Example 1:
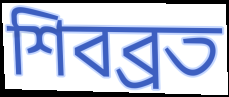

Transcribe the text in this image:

শিবব্রত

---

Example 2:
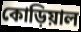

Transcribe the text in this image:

কোড়িয়াল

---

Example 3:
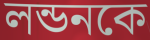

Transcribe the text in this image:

লন্ডনকে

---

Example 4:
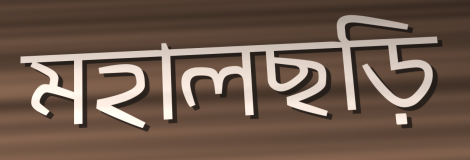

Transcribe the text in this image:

মহালছড়ি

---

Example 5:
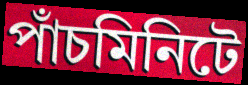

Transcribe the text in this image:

পাঁচমিনিটে